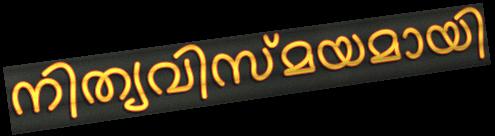
നിത്യവിസ്മയമായി